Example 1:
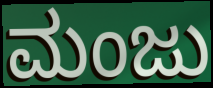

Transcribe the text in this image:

ಮಂಜು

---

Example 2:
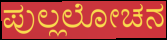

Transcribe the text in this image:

ಪುಲ್ಲಲೋಚನ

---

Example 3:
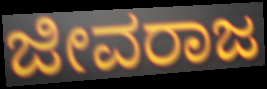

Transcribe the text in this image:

ಜೀವರಾಜ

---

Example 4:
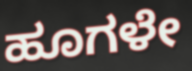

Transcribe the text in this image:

ಹೂಗಳೇ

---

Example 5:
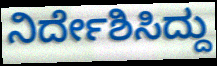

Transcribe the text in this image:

ನಿರ್ದೇಶಿಸಿದ್ದು